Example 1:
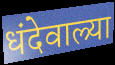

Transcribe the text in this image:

धंदेवाल्या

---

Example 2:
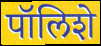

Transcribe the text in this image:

पॉलिशे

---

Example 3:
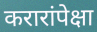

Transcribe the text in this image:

करारांपेक्षा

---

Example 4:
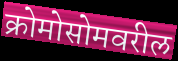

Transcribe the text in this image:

क्रोमोसोमवरील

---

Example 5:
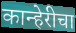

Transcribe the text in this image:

कान्हेरीचा